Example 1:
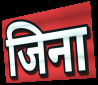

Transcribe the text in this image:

जिना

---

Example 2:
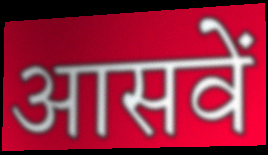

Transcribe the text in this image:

आसवें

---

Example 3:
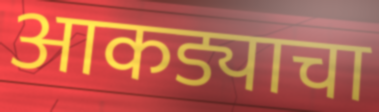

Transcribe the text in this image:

आकड्याचा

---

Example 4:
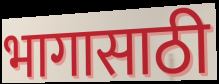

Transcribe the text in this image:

भागासाठी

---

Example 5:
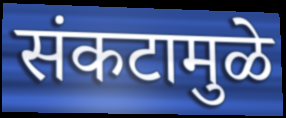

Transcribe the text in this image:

संकटामुळे